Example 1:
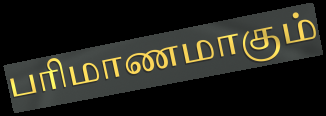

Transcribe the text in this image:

பரிமாணமாகும்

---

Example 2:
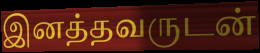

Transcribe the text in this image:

இனத்தவருடன்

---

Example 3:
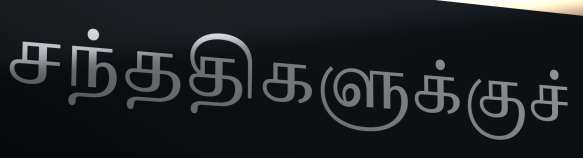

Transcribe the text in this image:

சந்ததிகளுக்குச்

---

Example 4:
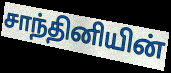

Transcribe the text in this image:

சாந்தினியின்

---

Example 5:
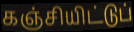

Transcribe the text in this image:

கஞ்சியிட்டுப்